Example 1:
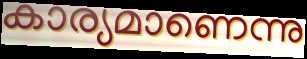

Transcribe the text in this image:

കാര്യമാണെന്നു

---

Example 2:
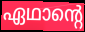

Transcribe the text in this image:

ഏഥാന്റെ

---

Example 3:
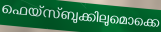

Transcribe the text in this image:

ഫെയ്സ്ബുക്കിലുമൊക്കെ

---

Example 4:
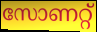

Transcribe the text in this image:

സോണറ്റ്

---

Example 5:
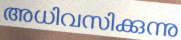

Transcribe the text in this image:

അധിവസിക്കുന്നു